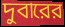
দুবারের